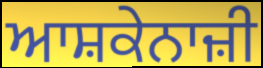
ਆਸ਼ਕੇਨਾਜ਼ੀ